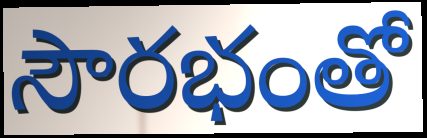
సౌరభంతో